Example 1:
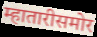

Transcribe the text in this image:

म्हातारीसमोर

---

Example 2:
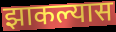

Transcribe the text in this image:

झाकल्यास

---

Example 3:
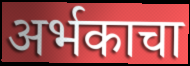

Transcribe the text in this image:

अर्भकाचा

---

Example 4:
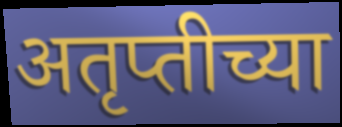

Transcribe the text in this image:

अतृप्तीच्या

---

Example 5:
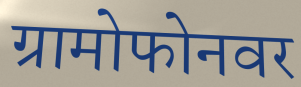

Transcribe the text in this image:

ग्रामोफोनवर